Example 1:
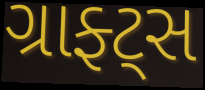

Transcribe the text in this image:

ગ્રાફ્ટ્સ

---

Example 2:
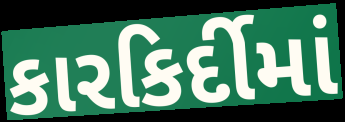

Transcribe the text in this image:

કારકિર્દીમાં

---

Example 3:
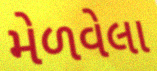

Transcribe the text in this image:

મેળવેલા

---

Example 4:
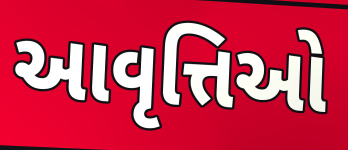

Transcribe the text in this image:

આવૃત્તિઓ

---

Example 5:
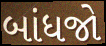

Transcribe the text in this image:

બાંધજો